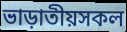
ভাড়াতীয়সকল